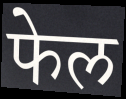
फेल